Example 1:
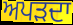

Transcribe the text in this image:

ਅਪੜਦਾ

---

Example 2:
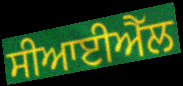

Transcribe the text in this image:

ਸੀਆਈਐੱਲ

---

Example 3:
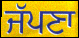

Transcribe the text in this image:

ਜੱਪਣਾ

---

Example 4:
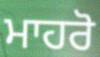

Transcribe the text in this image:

ਮਾਹਰੋ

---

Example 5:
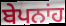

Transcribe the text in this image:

ਬੇਪਨਾਂਹ